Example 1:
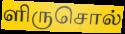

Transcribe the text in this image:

ளிருசொல்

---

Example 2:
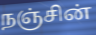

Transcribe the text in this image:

நஞ்சின்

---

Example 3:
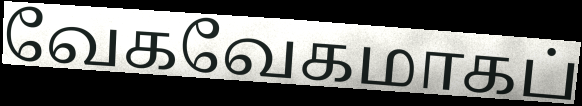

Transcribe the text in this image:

வேகவேகமாகப்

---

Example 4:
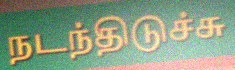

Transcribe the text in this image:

நடந்திடுச்சு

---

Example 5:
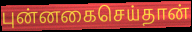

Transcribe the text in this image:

புன்னகைசெய்தான்